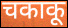
चकाकू